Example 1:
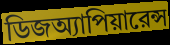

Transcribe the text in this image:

ডিজঅ্যাপিয়ারেন্স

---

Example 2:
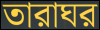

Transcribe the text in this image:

তারাঘর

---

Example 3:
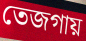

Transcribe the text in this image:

তেজগায়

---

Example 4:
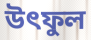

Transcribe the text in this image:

উৎফুল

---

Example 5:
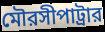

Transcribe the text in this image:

মৌরসীপাট্রার